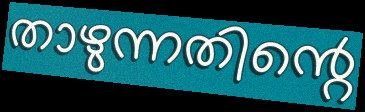
താഴുന്നതിന്റെ